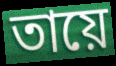
তায়ে